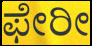
ಫೇರೀ